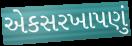
એકસરખાપણું